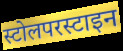
स्टोलपरस्टाइन